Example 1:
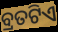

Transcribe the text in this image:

ବ୍ରତଟିଏ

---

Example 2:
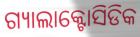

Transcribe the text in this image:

ଗ୍ୟାଲାକ୍ଟୋସିଡିକ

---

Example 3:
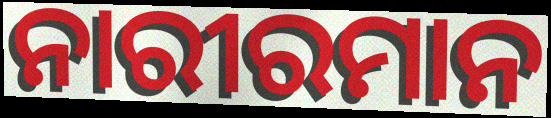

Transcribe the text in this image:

ନାରୀରମାନ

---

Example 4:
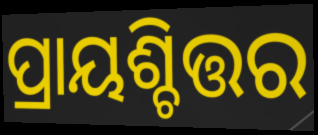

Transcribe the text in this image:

ପ୍ରାୟଶ୍ଚିତ୍ତର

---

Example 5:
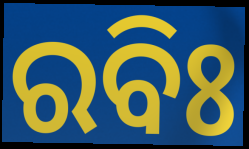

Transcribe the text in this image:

ରବିଃ